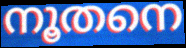
നൂതനെ